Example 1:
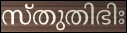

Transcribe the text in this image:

സ്തുതിഭിഃ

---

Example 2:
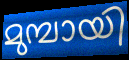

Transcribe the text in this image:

മുമ്പായി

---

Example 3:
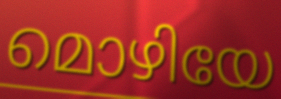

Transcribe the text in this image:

മൊഴിയേ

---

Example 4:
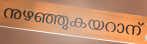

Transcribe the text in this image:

നുഴഞ്ഞുകയറാന്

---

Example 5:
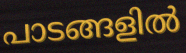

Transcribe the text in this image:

പാടങ്ങളിൽ